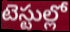
టెస్టుల్లో